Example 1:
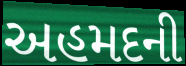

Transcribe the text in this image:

અહમદની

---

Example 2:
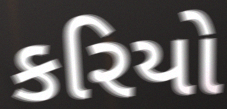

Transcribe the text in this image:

કરિયો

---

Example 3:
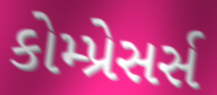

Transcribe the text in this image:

કોમ્પ્રેસર્સ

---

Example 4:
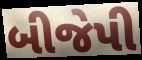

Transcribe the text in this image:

બીજેપી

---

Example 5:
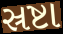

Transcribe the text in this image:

સ્રષ્ટા